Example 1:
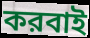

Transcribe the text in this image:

করবাই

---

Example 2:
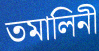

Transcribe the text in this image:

তমালিনী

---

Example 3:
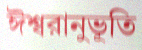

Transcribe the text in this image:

ঈশ্বরানুভূতি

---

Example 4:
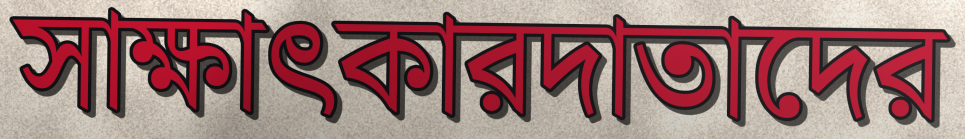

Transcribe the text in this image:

সাক্ষাৎকারদাতাদের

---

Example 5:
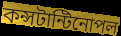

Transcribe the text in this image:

কন্সটান্টিনোপল